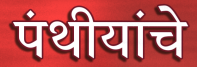
पंथीयांचे